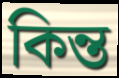
কিন্ত